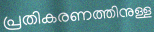
പ്രതികരണത്തിനുള്ള